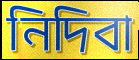
নিদিবা